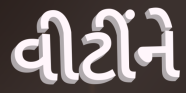
વીટીંને